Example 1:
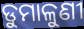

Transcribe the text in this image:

ଡୁମାଳୁଣୀ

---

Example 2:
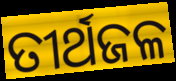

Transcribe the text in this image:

ତୀର୍ଥଜଳ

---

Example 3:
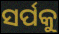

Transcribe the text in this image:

ସର୍ପକୁ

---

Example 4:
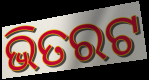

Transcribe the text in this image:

ଭିତରଟ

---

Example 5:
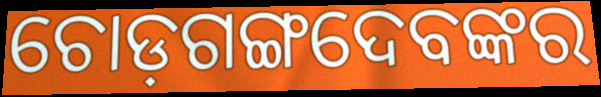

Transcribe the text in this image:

ଚୋଡ଼ଗଙ୍ଗଦେବଙ୍କର